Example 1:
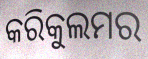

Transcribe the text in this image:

କରିକୁଲମର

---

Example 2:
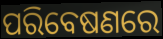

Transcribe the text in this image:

ପରିବେଷଣରେ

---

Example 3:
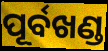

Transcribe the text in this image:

ପୂର୍ବଖଣ୍ଡ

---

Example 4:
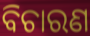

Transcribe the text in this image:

ବିଚାରଣ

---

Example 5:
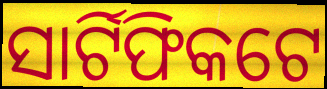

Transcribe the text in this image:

ସାର୍ଟିଫିକଟେ